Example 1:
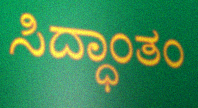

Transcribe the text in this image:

ಸಿದ್ಧಾಂತಂ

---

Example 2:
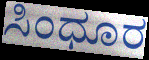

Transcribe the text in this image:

ಸಿಂಧೂರ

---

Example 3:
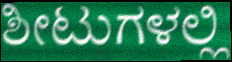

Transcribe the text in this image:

ಶೀಟುಗಳಲ್ಲಿ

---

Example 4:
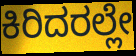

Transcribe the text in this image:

ಕಿರಿದರಲ್ಲೇ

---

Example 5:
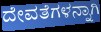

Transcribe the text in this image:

ದೇವತೆಗಳನ್ನಾಗಿ